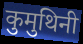
कुमुथिनी